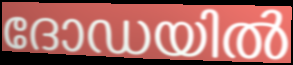
ദോഡയിൽ